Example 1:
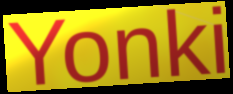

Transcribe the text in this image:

Yonki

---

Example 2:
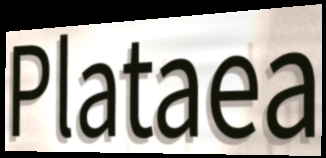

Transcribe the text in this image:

Plataea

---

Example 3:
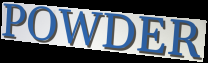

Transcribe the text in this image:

POWDER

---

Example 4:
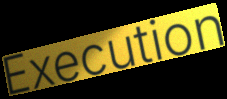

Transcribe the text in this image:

Execution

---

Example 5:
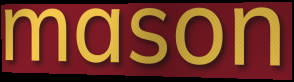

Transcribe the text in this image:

mason